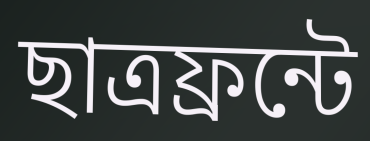
ছাত্রফ্রন্টে